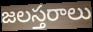
జలస్తరాలు